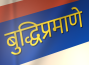
बुद्धिप्रमाणे